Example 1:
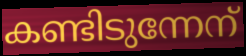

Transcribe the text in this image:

കണ്ടിടുന്നേന്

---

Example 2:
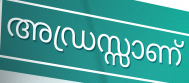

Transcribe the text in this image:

അഡ്രസ്സാണ്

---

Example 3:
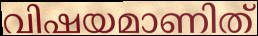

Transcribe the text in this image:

വിഷയമാണിത്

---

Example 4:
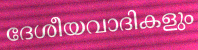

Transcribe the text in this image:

ദേശീയവാദികളും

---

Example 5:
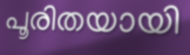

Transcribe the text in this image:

പൂരിതയായി